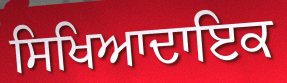
ਸਿਖਿਆਦਾਇਕ